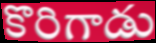
కొరిగాడు